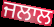
ਜਲਾਲ